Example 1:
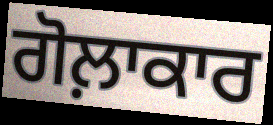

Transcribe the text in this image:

ਗੋਲ਼ਾਕਾਰ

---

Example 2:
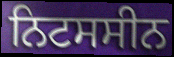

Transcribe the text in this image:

ਨਿਟਸਸੀਨ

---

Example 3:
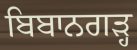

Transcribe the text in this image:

ਬਿਬਾਨਗੜ੍ਹ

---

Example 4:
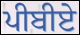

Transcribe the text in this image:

ਪੀਬੀਏ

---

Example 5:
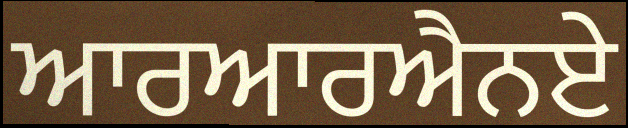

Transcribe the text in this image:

ਆਰਆਰਐਨਏ